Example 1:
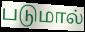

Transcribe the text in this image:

படுமால்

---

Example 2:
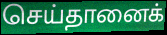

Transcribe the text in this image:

செய்தானைக்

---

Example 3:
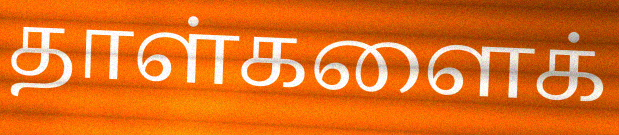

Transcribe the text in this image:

தாள்களைக்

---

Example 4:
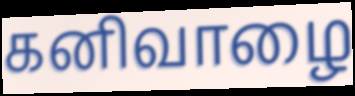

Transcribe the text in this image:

கனிவாழை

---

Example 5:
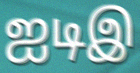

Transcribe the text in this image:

ஐடிஇ